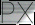
PX